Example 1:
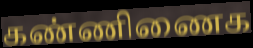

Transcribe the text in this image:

கண்ணிணைக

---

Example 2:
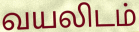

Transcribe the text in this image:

வயலிடம்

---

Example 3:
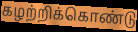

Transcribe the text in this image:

கழற்றிக்கொண்டு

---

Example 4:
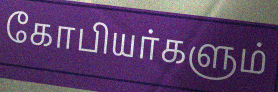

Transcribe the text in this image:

கோபியர்களும்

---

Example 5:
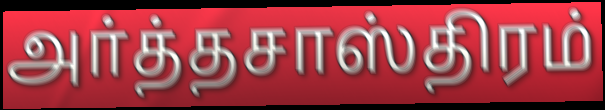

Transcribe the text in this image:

அர்த்தசாஸ்திரம்